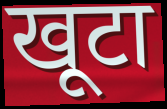
खूटा